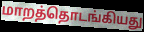
மாறத்தொடங்கியது